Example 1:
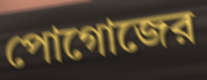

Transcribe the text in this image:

পোগোজের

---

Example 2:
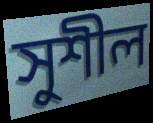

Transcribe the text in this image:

সুশীল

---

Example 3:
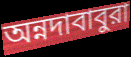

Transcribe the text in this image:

অন্নদাবাবুরা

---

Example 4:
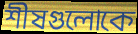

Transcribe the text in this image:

শীষগুলোকে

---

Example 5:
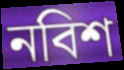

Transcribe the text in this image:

নবিশ